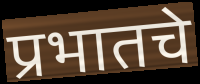
प्रभातचे